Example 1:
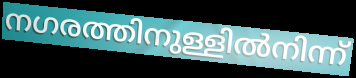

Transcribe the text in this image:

നഗരത്തിനുള്ളിൽനിന്ന്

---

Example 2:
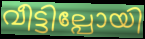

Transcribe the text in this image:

വീട്ടില്പോയി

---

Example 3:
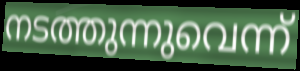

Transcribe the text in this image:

നടത്തുന്നുവെന്ന്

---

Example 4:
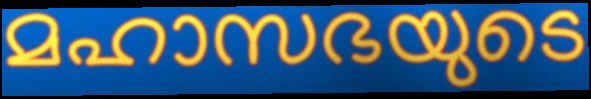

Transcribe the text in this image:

മഹാസഭയുടെ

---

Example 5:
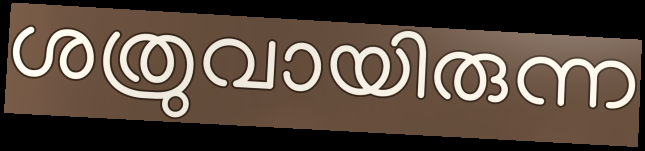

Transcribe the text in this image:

ശത്രുവായിരുന്ന